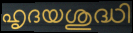
ഹൃദയശുദ്ധി